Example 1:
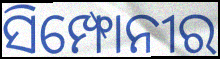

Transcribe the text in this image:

ସିମ୍ଫୋନୀର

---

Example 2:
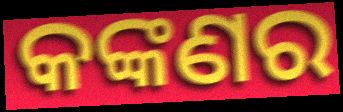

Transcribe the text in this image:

କଙ୍କଣର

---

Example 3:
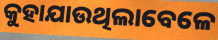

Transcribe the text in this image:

କୁହାଯାଉଥିଲାବେଳେ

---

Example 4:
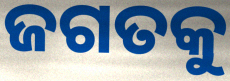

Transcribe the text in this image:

ଜଗତକୁ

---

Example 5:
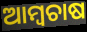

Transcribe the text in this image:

ଆମ୍ୱଚାଷ